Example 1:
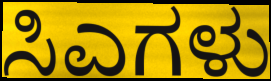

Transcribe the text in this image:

ಸಿಎಗಳು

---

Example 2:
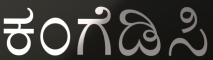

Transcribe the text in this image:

ಕಂಗೆಡಿಸಿ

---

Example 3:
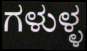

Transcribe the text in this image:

ಗಳುಳ್ಳ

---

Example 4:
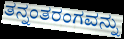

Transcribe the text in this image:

ತನ್ನಂತರಂಗವನ್ನು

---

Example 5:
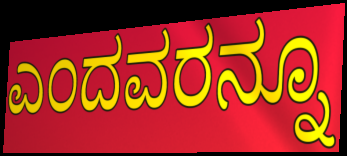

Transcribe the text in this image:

ಎಂದವರನ್ನೂ